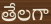
తేలగా